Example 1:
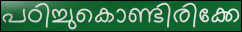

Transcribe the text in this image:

പഠിച്ചുകൊണ്ടിരിക്കേ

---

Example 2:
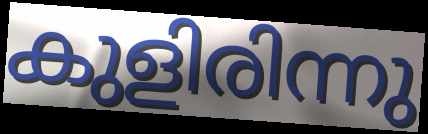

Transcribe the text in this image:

കുളിരിന്നു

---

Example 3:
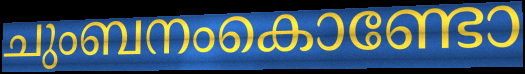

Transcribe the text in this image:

ചുംബനംകൊണ്ടോ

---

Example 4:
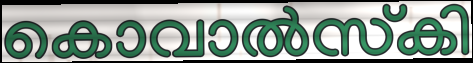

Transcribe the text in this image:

കൊവാൽസ്‌കി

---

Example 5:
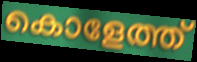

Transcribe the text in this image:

കൊളേത്ത്